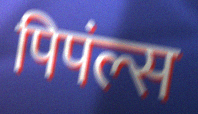
पिपंल्स